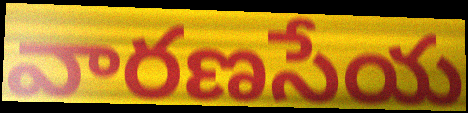
వారణసేయ